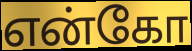
என்கோ